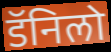
डॅनिलो